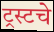
ट्रस्टचे